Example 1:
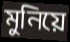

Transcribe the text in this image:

মুনিয়ে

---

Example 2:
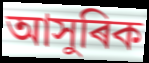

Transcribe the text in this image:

আসুৰিক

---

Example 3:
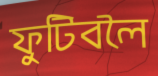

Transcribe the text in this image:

ফুটিবলৈ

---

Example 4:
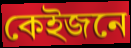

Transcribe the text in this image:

কেইজনে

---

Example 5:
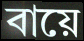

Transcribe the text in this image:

বায়ে